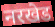
नरखेड